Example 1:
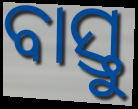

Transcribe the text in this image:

ବାସ୍ତୁ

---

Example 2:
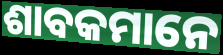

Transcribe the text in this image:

ଶାବକମାନେ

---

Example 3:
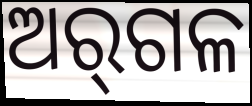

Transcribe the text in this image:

ଅର୍‌ଗଳ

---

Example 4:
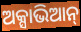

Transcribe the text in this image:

ଅକ୍ସାଭିଆନ୍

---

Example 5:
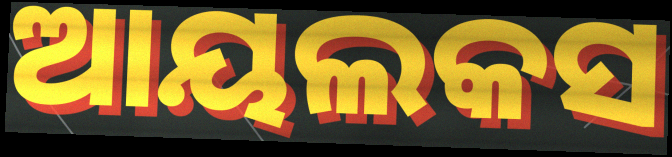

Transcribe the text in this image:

ଆୟଲକସ